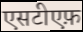
एसटीएफ़